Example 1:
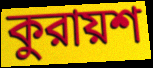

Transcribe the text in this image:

কুরায়শ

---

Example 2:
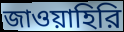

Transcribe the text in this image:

জাওয়াহিরি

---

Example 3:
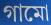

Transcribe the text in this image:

গামো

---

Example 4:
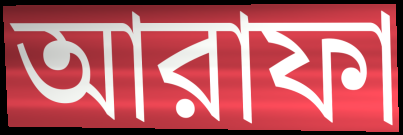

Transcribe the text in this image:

আরাফা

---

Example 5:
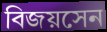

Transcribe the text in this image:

বিজয়সেন